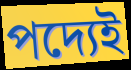
পদ্যেই